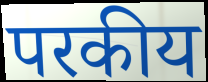
परकीय